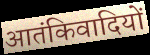
आतंकिवादियों